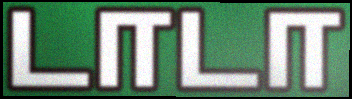
டாடா